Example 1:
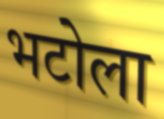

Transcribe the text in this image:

भटोला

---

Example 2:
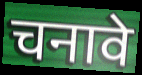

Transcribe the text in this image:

चनावे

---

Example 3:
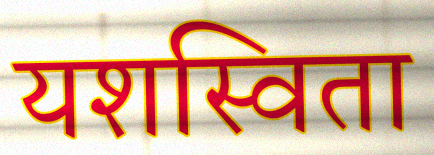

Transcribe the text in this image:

यशस्विता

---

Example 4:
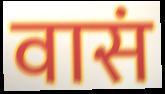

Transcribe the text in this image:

वासं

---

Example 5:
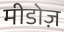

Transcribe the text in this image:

मीडोज़